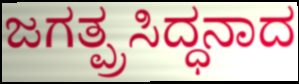
ಜಗತ್ಪ್ರಸಿದ್ಧನಾದ